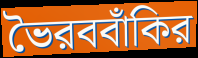
ভৈরববাঁকির